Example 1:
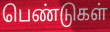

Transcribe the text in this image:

பெண்டுகள்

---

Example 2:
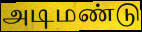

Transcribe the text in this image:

அடிமண்டு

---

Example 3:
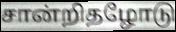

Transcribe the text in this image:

சான்றிதழோடு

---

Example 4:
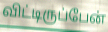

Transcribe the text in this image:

விட்டிருப்பேன்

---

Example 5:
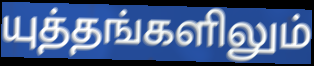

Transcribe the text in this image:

யுத்தங்களிலும்